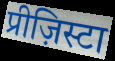
प्रीज़िस्टा